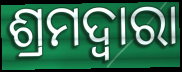
ଶ୍ରମଦ୍ୱାରା